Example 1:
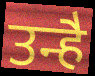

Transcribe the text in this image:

उन्है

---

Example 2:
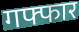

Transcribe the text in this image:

गफ्फार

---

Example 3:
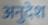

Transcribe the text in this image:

अनुदेश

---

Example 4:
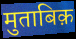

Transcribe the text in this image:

मुताबिक़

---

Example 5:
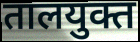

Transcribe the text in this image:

तालयुक्त